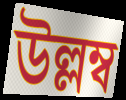
উল্লম্ব